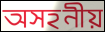
অসহনীয়